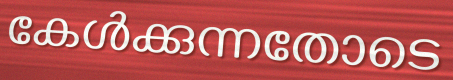
കേൾക്കുന്നതോടെ